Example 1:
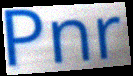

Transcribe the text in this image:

Pnr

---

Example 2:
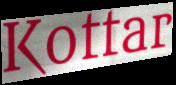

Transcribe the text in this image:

Kottar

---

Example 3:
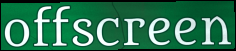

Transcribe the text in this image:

offscreen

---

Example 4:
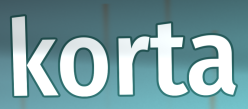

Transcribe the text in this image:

korta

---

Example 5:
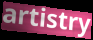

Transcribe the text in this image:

artistry